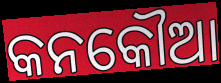
କନକୌଆ